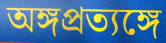
অঙ্গপ্রত্যঙ্গে